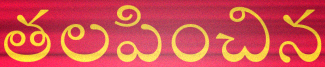
తలపించిన